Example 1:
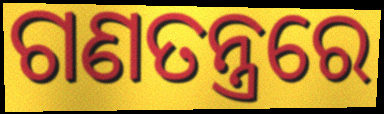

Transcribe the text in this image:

ଗଣତନ୍ତ୍ରରେ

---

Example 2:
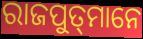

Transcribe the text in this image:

ରାଜପୁତ୍‍ମାନେ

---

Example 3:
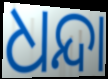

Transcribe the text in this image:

ଧନ୍ଦା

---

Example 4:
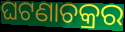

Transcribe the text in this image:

ଘଟଣାଚକ୍ରର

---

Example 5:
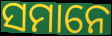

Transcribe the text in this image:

ସମାନେ